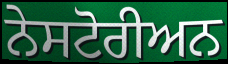
ਨੇਸਟੋਰੀਅਨ